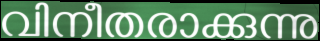
വിനീതരാക്കുന്നു